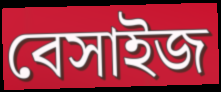
বেসাইজ